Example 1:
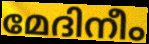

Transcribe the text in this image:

മേദിനീം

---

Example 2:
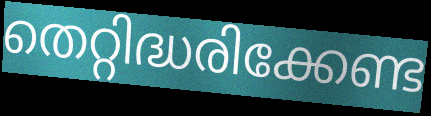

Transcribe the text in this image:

തെറ്റിദ്ധരിക്കേണ്ട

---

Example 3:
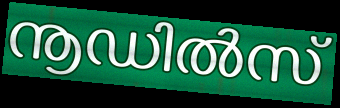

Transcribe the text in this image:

നൂഡിൽസ്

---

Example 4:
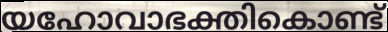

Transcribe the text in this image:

യഹോവാഭക്തികൊണ്ട്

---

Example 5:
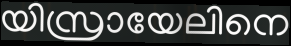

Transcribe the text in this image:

യിസ്രായേലിനെ